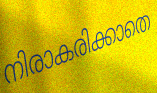
നിരാകരിക്കാതെ